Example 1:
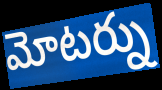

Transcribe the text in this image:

మోటర్ను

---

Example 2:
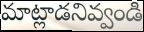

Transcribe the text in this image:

మాట్లాడనివ్వండి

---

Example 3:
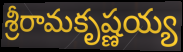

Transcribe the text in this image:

శ్రీరామకృష్ణయ్య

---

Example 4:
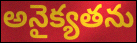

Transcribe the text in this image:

అనైక్యతను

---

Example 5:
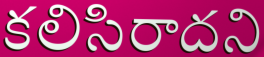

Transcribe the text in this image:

కలిసిరాదని